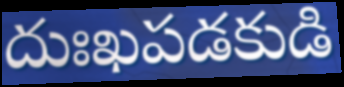
దుఃఖపడకుడి